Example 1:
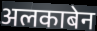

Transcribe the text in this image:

अलकाबेन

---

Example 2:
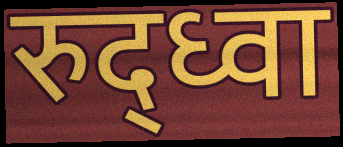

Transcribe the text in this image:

रुद्ध्वा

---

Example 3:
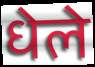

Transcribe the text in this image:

धेले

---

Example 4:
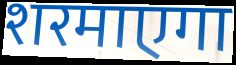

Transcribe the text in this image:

शरमाएगा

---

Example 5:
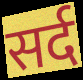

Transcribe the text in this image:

सर्द